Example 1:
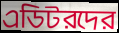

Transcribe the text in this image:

এডিটরদের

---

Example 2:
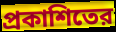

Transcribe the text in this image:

প্রকাশিতের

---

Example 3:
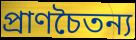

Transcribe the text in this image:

প্রাণচৈতন্য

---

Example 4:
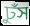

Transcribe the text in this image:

ঢুঁস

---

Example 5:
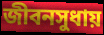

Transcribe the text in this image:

জীবনসুধায়